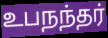
உபநந்தர்